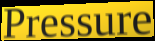
Pressure